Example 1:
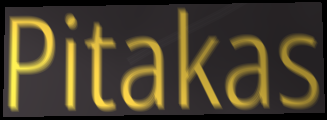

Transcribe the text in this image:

Pitakas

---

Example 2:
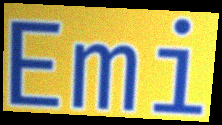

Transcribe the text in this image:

Emi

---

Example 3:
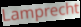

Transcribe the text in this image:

Lamprecht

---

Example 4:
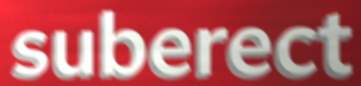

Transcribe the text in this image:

suberect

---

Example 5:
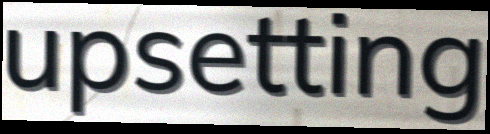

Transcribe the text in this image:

upsetting